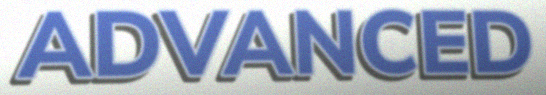
ADVANCED